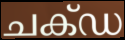
ചക്ഡ